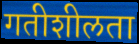
गतीशीलता